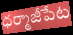
ధర్మాజీపేట